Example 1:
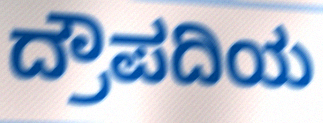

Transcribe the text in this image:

ದ್ರೌಪದಿಯ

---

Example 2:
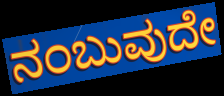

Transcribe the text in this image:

ನಂಬುವುದೇ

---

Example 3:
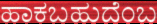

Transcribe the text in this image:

ಹಾಕಬಹುದೆಂಬ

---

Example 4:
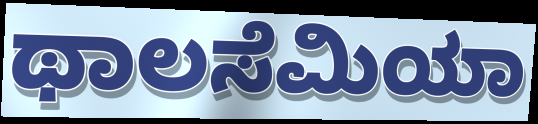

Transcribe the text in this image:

ಥಾಲಸೆಮಿಯಾ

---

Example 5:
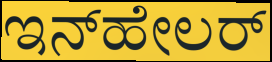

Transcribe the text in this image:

ಇನ್‌ಹೇಲರ್